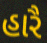
હારૈ